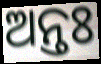
ଅନ୍ତଃ